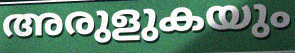
അരുളുകയും